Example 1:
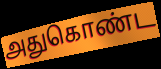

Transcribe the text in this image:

அதுகொண்ட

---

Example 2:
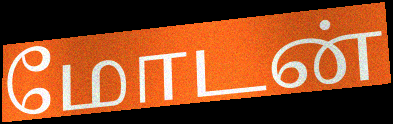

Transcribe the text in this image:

மோடன்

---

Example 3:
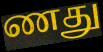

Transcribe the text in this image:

ணது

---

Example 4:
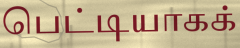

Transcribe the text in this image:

பெட்டியாகக்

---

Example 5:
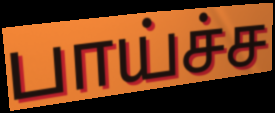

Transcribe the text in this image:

பாய்ச்ச